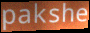
pakshe